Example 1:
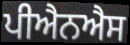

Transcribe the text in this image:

ਪੀਐਨਐਸ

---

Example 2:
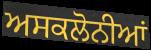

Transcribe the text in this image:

ਅਸਕਲੋਨੀਆਂ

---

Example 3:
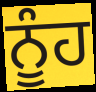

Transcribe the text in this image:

ਨੂੰਹ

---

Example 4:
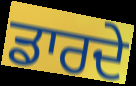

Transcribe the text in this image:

ਡਾਰਦੇ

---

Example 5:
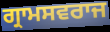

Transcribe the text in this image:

ਗ੍ਰਾਮਸਵਰਾਜ